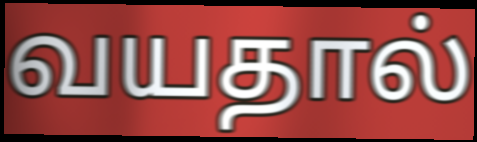
வயதால்